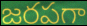
జరపగా